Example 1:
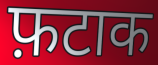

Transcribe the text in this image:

फ़टाक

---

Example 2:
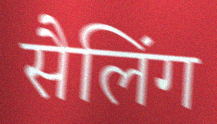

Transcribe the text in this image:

सैलिंग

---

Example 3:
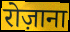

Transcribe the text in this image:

रोज़ाना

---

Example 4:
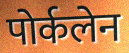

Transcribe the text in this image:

पोर्कलेन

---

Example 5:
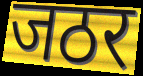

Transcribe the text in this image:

जठर